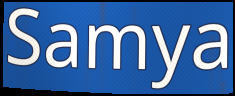
Samya